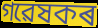
গৱেষকৰ